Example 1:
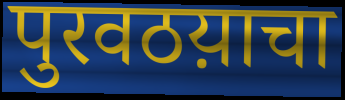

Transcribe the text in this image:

पुरवठय़ाचा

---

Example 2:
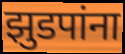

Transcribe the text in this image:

झुडपांना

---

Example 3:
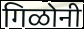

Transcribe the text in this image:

गिळोनी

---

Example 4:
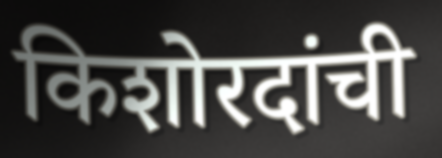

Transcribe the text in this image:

किशोरदांची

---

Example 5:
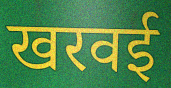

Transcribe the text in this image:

खरवई